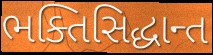
ભક્તિસિદ્ધાન્ત